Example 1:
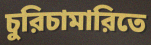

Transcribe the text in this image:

চুরিচামারিতে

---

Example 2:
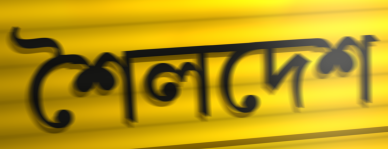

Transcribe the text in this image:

শৈলদেশ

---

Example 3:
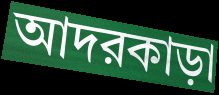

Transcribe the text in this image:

আদরকাড়া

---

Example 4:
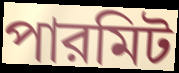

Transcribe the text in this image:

পারমিট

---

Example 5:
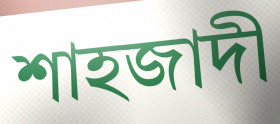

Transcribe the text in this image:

শাহজাদী